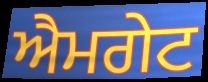
ਐਮਗੇਟ